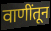
वाणींतून